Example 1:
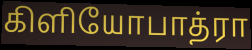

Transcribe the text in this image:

கிளியோபாத்ரா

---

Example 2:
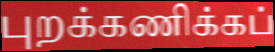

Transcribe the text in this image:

புறக்கணிக்கப்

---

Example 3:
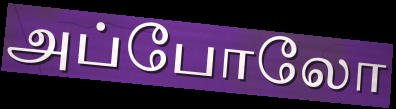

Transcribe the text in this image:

அப்போலோ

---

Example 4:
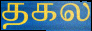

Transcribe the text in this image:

தகல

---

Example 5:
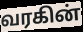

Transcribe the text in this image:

வரகின்